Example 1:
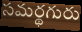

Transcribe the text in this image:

సమర్థగురు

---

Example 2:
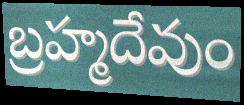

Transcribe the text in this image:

బ్రహ్మదేవుం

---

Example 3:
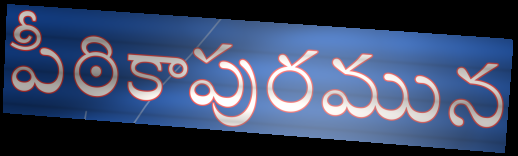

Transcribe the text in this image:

పీఠికాపురమున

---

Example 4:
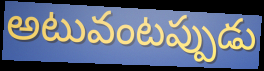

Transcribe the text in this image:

అటువంటప్పుడు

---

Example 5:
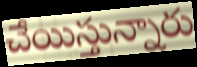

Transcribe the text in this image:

చేయిస్తున్నారు